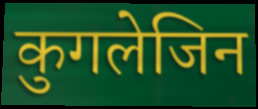
कुगलेजिन